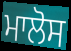
ਮਾਲੋਸ